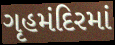
ગૃહમંદિરમાં